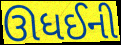
ઊધઈની